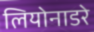
लियोनाडरे